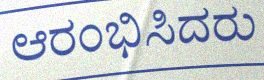
ಆರಂಭಿಸಿದರು